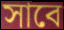
সাবে